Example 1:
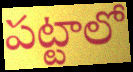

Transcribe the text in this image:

పట్టాలో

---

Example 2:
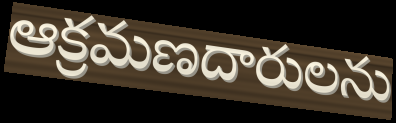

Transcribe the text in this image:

ఆక్రమణదారులను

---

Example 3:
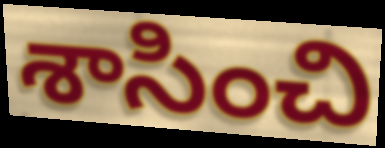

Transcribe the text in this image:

శాసించి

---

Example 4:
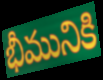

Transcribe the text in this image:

భీమునికి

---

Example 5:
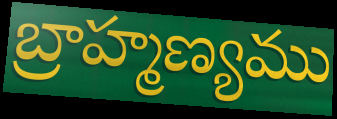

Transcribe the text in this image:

బ్రాహ్మణ్యము